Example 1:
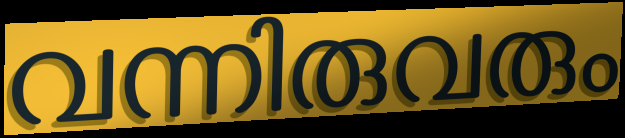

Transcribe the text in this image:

വന്നിരുവരും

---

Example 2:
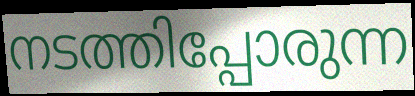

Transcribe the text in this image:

നടത്തിപ്പോരുന്ന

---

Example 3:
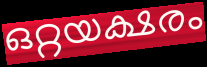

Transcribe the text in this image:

ഒറ്റയക്ഷരം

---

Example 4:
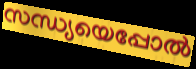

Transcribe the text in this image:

സന്ധ്യയെപ്പോൽ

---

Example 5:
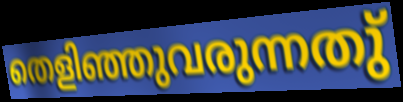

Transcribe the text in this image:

തെളിഞ്ഞുവരുന്നതു്